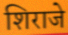
शिराजे